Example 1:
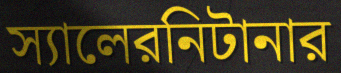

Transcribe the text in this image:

স্যালেরনিটানার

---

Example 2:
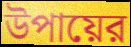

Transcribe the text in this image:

উপায়ের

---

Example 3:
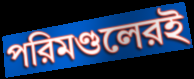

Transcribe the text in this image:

পরিমণ্ডলেরই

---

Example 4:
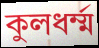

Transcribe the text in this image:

কুলধর্ম্ম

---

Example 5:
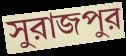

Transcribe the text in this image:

সুরাজপুর